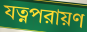
যত্নপরায়ণ